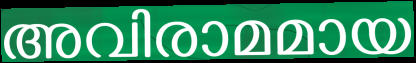
അവിരാമമായ